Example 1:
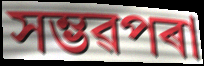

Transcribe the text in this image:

সম্ভৱপৰা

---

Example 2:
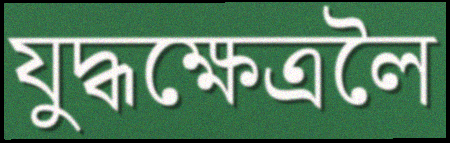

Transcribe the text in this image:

যুদ্ধক্ষেত্ৰলৈ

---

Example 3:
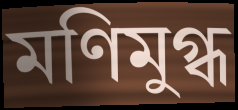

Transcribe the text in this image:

মণিমুগ্ধ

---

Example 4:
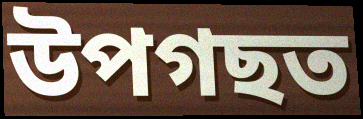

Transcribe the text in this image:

উপগছত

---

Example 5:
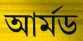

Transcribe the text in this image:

আৰ্মড